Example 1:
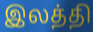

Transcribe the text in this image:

இலத்தி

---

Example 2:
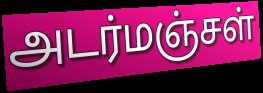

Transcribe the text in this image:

அடர்மஞ்சள்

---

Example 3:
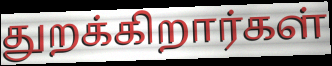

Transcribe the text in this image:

துறக்கிறார்கள்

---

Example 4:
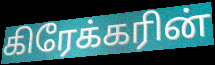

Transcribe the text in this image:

கிரேக்கரின்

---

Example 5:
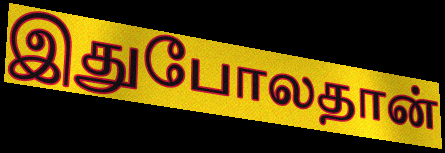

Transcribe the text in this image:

இதுபோலதான்